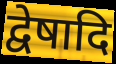
द्वेषादि